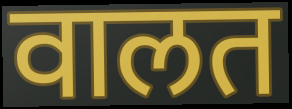
वालत